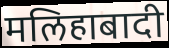
मलिहाबादी